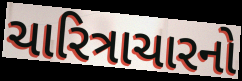
ચારિત્રાચારનો